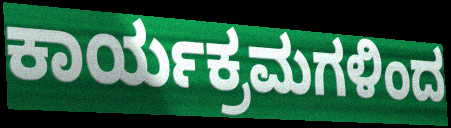
ಕಾರ್ಯಕ್ರಮಗಳಿಂದ